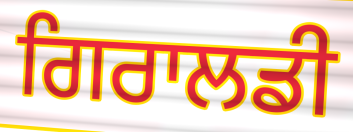
ਗਿਰਾਲਡੀ